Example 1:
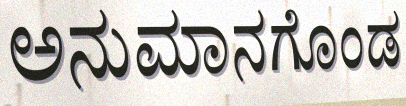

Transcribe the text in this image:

ಅನುಮಾನಗೊಂಡ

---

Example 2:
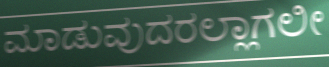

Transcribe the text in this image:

ಮಾಡುವುದರಲ್ಲಾಗಲೀ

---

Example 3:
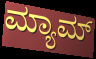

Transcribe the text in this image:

ಮ್ಯಾಮ್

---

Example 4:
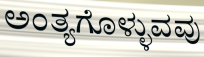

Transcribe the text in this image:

ಅಂತ್ಯಗೊಳ್ಳುವವು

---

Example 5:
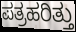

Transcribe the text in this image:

ಪತ್ರಹರಿತ್ತು